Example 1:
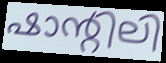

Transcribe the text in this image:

ഷാന്റിലി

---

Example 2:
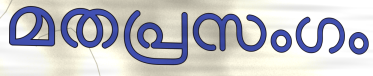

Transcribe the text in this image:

മതപ്രസംഗം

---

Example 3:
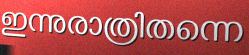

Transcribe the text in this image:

ഇന്നുരാത്രിതന്നെ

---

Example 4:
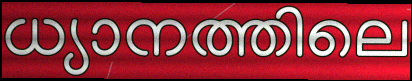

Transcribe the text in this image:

ധ്യാനത്തിലെ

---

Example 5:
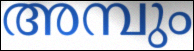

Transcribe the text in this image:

അമ്പും